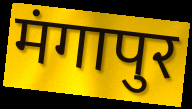
मंगापुर